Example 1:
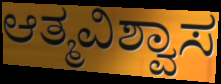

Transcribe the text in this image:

ಆತ್ಮವಿಶ್ವಾಸ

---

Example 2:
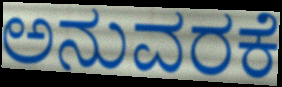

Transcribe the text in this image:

ಅನುವರಕೆ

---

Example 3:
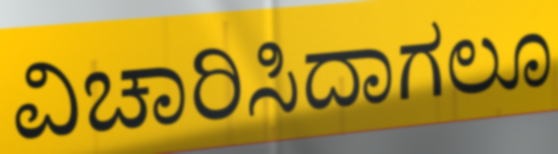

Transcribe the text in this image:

ವಿಚಾರಿಸಿದಾಗಲೂ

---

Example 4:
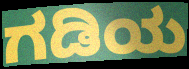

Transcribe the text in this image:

ಗಡಿಯ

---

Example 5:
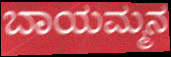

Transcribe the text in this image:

ಬಾಯಮ್ಮನ